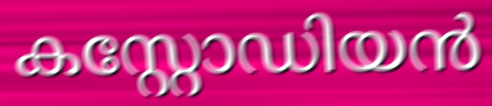
കസ്റ്റോഡിയൻ